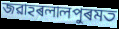
জৱাহৰলালপুৰমত